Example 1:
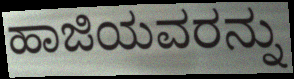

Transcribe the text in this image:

ಹಾಜಿಯವರನ್ನು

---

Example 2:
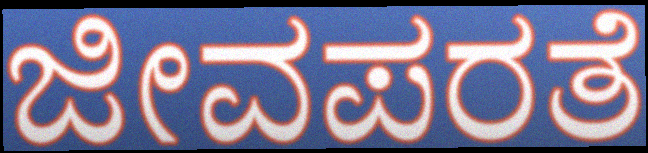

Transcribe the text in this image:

ಜೀವಪರತೆ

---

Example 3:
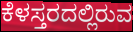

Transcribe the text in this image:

ಕೆಳಸ್ತರದಲ್ಲಿರುವ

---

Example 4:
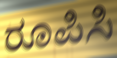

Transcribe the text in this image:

ರೂಪಿಸಿ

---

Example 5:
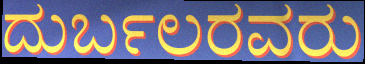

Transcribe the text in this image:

ದುರ್ಬಲರವರು